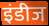
इंडीज